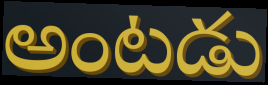
అంటడు